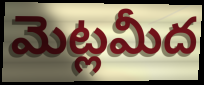
మెట్లమీద